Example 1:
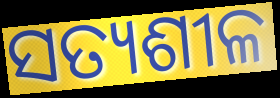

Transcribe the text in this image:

ସତ୍ୟଶୀଳ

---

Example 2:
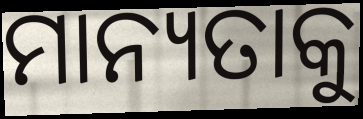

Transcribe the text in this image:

ମାନ୍ୟତାକୁ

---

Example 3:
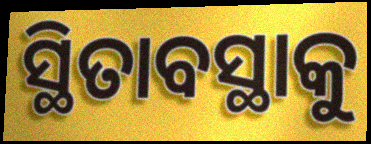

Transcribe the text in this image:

ସ୍ଥିତାବସ୍ଥାକୁ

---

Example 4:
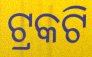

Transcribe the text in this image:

ଟ୍ରକଟି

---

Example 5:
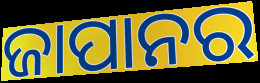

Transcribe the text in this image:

ଜାପାନର